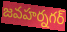
జవహర్నగర్